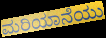
ಮರಿಯಾನೆಯು